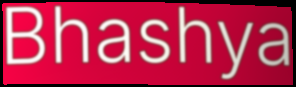
Bhashya